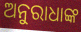
ଅନୁରାଧାଙ୍କ